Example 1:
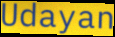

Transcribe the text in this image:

Udayan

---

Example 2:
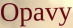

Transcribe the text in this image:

Opavy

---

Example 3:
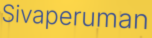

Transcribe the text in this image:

Sivaperuman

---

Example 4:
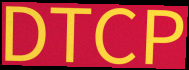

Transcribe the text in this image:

DTCP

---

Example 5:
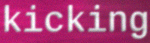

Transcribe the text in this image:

kicking